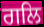
ਗਲਿ